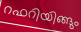
റഫറിയിങ്ങും